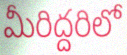
మీరిద్దరిలో